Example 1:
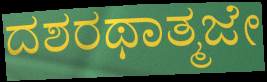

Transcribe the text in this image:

ದಶರಥಾತ್ಮಜೇ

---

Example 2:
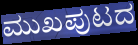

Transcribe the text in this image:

ಮುಖಪುಟದ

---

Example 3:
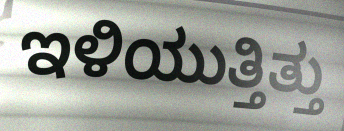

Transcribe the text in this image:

ಇಳಿಯುತ್ತಿತ್ತು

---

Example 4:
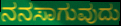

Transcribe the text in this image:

ನನಸಾಗುವುದು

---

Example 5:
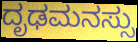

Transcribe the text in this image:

ದೃಢಮನಸ್ಸು